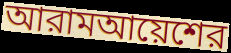
আরামআয়েশের